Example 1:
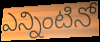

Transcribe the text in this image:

ఎన్నింటినో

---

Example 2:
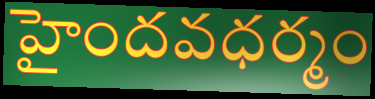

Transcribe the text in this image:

హైందవధర్మం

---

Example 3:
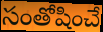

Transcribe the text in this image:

సంతోషించే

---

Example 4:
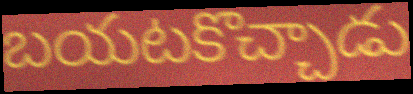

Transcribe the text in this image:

బయటకొచ్చాడు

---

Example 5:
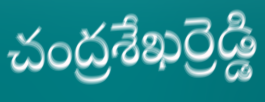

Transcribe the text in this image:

చంద్రశేఖర్రెడ్డి